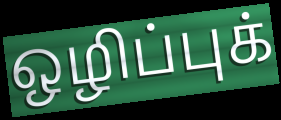
ஒழிப்புக்